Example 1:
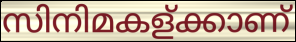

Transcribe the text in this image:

സിനിമകള്ക്കാണ്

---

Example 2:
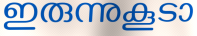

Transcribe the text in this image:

ഇരുന്നുകൂടാ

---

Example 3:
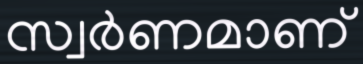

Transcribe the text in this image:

സ്വർണമാണ്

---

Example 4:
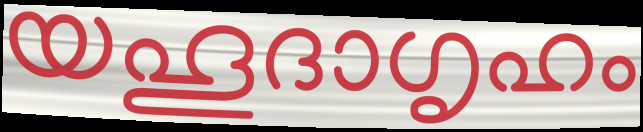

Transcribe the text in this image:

യഹൂദാഗൃഹം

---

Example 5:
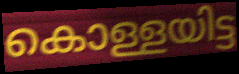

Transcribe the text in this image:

കൊള്ളയിട്ട